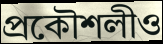
প্রকৌশলীও